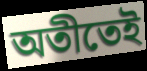
অতীতেই